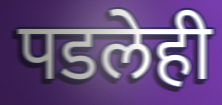
पडलेही